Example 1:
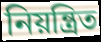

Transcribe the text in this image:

নিয়ন্ত্রিত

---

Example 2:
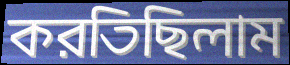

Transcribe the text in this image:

করতিছিলাম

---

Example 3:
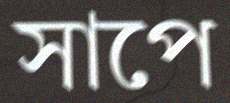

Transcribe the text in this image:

সাপে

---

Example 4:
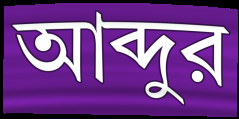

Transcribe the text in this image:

আব্দুর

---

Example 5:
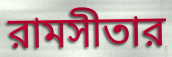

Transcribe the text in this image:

রামসীতার